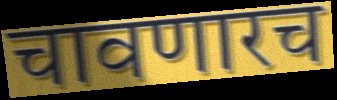
चावणारच